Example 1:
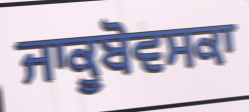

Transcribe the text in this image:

ਜਾਕੂਬੋਵਸਕਾ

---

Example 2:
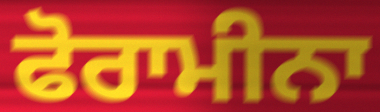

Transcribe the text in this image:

ਫੋਰਾਮੀਨਾ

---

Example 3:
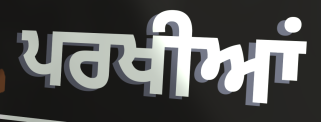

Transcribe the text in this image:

ਪਰਖੀਆਂ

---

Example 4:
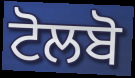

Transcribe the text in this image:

ਟੋਲਬੋ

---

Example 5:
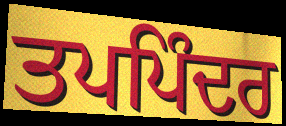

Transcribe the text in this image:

ਤਪਪਿੰਦਰ